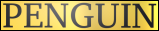
PENGUIN